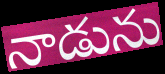
నాడును